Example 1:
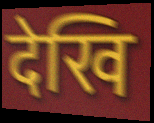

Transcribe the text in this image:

देखि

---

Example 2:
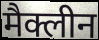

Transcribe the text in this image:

मैक्लीन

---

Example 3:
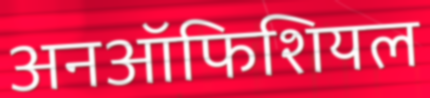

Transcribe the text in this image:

अनऑफिशियल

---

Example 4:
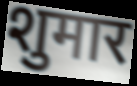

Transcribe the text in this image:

शुमार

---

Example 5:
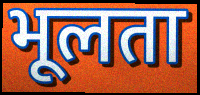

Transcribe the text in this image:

भूलता